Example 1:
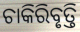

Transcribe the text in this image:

ଚାକିରିବୃତ୍ତି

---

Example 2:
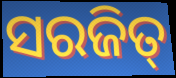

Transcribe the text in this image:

ସରଜିତ୍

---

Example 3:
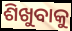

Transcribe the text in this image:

ଶିଖୁବାକୁ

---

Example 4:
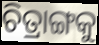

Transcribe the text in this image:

ଚିତ୍ରାଙ୍ଗକୁ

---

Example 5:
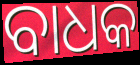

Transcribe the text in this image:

ବାଧକ